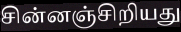
சின்னஞ்சிறியது